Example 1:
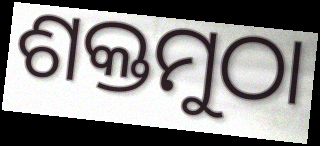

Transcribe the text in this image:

ଶକ୍ତମୁଠା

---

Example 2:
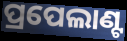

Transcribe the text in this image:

ପ୍ରପେଲାଣ୍ଟ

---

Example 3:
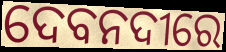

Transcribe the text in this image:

ଦେବନଦୀରେ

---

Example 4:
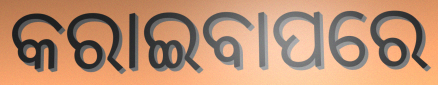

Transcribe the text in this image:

କରାଇବାପରେ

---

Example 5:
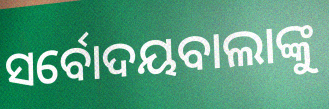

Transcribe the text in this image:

ସର୍ବୋଦୟବାଲାଙ୍କୁ